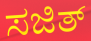
ಸಜಿತ್